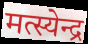
मत्स्येन्द्र